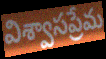
విశ్వాసప్రేమ